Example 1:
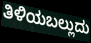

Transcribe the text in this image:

ತಿಳಿಯಬಲ್ಲುದು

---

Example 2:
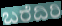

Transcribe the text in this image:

ಬರೆದಿರಿ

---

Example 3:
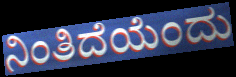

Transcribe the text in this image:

ನಿಂತಿದೆಯೆಂದು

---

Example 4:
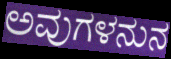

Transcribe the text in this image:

ಅವುಗಳನುನ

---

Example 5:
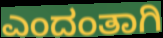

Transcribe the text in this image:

ಎಂದಂತಾಗಿ